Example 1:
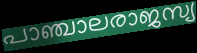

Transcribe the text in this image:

പാഞ്ചാലരാജസ്യ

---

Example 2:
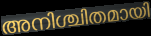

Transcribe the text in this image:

അനിശ്ചിതമായി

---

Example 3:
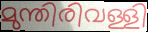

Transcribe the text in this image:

മുന്തിരിവള്ളി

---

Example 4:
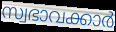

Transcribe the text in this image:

സ്വഭാവക്കാർ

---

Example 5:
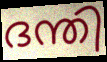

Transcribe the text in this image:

ദന്തി